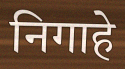
निगाहे